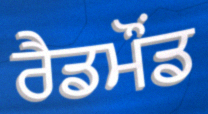
ਰੈਡਮੌਂਡ